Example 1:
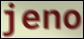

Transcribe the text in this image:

jeno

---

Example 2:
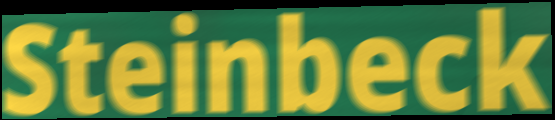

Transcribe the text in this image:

Steinbeck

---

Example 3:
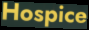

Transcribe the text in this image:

Hospice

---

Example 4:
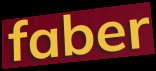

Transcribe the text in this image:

faber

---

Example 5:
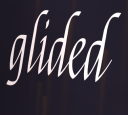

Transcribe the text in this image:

glided